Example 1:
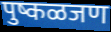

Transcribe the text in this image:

पुष्कळजण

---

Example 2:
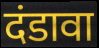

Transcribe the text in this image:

दंडावा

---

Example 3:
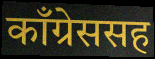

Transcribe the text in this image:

काँग्रेससह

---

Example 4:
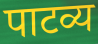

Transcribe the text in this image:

पाटव्य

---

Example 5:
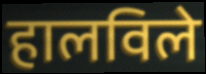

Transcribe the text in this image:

हालविले